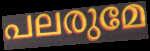
പലരുമേ